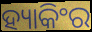
ହ୍ୟାକିଂର